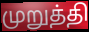
முறுத்தி